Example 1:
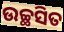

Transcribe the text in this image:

ଉଚ୍ଛସିତ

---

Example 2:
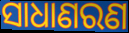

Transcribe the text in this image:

ସାଧାଣରଣ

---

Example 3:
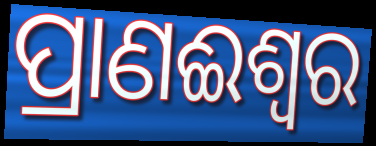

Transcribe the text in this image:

ପ୍ରାଣଈଶ୍ୱର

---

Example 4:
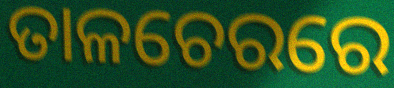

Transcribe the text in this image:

ତାଳଚେରରେ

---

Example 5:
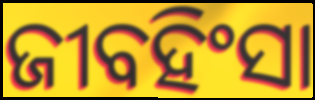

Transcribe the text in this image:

ଜୀବହିଂସା